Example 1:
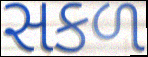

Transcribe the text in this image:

સકળ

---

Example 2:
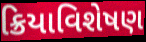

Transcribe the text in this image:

ક્રિયાવિશેષણ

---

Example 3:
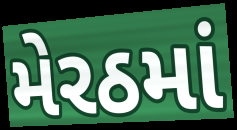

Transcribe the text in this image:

મેરઠમાં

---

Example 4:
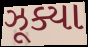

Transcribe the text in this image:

ઝૂક્યા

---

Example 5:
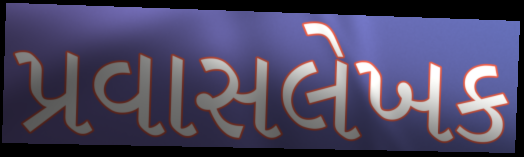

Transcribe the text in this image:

પ્રવાસલેખક